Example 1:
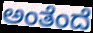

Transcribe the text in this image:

ಅಂತೆಂದೆ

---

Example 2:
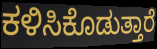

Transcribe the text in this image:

ಕಳಿಸಿಕೊಡುತ್ತಾರೆ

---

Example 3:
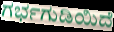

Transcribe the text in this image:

ಗರ್ಭಗುಡಿಯಿದೆ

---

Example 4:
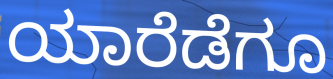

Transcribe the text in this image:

ಯಾರೆಡೆಗೂ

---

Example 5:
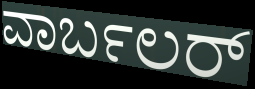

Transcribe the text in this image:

ವಾರ್ಬಲರ್